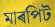
মাৰপিট